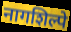
नागशिल्पे